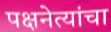
पक्षनेत्यांचा